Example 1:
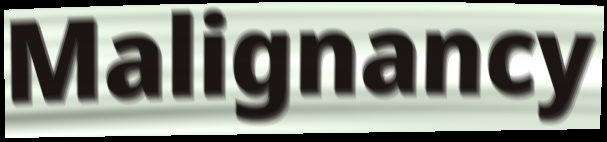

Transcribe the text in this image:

Malignancy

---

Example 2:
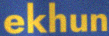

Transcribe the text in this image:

ekhun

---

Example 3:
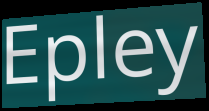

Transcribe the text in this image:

Epley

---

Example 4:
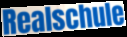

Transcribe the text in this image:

Realschule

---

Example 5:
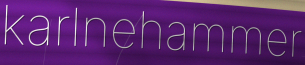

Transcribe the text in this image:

karlnehammer